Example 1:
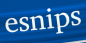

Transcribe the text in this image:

esnips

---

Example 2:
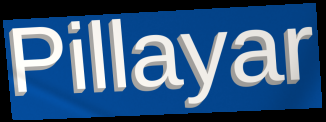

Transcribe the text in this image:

Pillayar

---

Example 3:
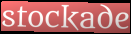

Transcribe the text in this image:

stockade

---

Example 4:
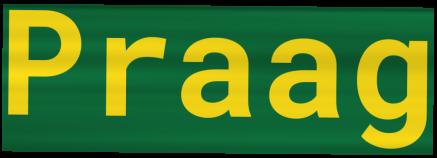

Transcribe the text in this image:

Praag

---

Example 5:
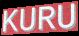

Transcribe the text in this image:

KURU